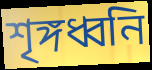
শৃঙ্গধ্বনি